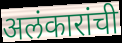
अलंकारांची